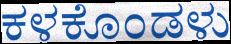
ಕಳಕೊಂಡಳು